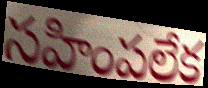
సహింపలేక